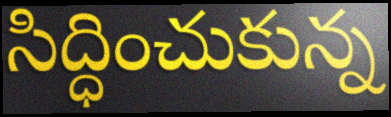
సిద్ధించుకున్న